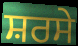
ਸ਼ਰਸੇ